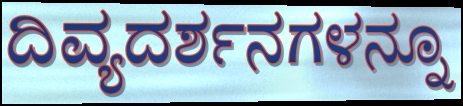
ದಿವ್ಯದರ್ಶನಗಳನ್ನೂ